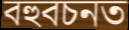
বহুবচনত